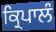
ਕ੍ਰਿਪਾਲੰ